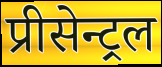
प्रीसेन्ट्रल